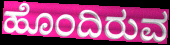
ಹೊಂದಿರುವ